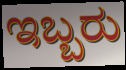
ಇಬ್ಬರು